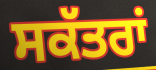
ਸਕੱਤਰਾਂ